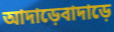
আদাড়েবাদাড়ে